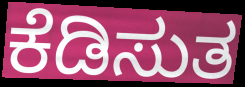
ಕೆಡಿಸುತ